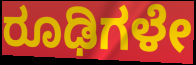
ರೂಢಿಗಳೇ